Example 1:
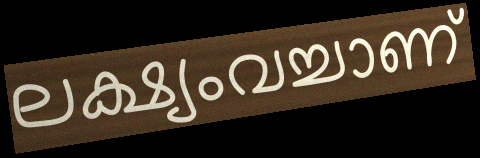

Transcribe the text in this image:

ലക്ഷ്യംവച്ചാണ്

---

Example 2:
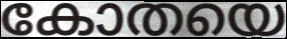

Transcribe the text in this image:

കോതയെ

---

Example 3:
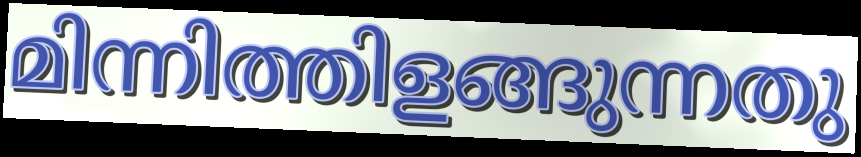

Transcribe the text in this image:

മിന്നിത്തിളങ്ങുന്നതു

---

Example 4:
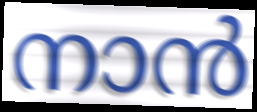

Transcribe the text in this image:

നാൻ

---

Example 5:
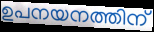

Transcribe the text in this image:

ഉപനയനത്തിന്